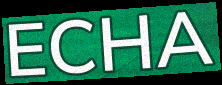
ECHA